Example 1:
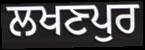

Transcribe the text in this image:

ਲਖਣਪੁਰ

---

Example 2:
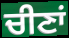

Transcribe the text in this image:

ਚੀਣਾਂ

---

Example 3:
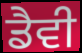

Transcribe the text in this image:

ਡੈਵੀ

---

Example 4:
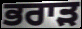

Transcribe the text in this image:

ਭਰਾੜ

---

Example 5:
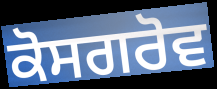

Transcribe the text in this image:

ਕੋਸਗਰੋਵ